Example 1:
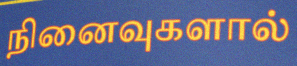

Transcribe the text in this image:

நினைவுகளால்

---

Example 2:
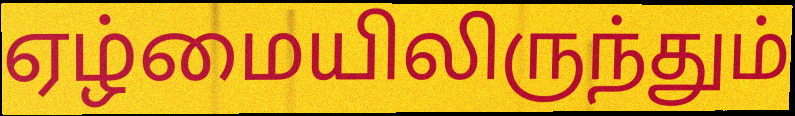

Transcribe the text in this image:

ஏழ்மையிலிருந்தும்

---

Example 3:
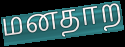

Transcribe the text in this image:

மனதாற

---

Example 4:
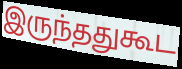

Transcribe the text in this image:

இருந்ததுகூட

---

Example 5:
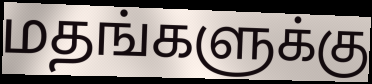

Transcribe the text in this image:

மதங்களுக்கு